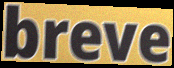
breve